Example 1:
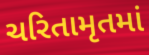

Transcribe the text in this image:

ચરિતામૃતમાં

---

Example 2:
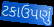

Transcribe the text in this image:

ટકાઉપણું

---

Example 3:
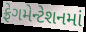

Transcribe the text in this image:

ફ્રેગમેન્ટેશનમાં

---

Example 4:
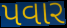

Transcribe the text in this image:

પવાર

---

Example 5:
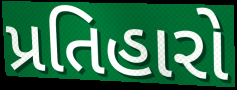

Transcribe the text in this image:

પ્રતિહારો